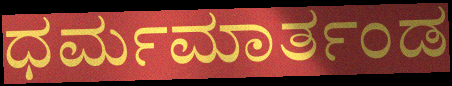
ಧರ್ಮಮಾರ್ತಂಡ